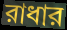
রাধার